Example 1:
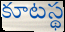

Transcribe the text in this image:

కూటస్థ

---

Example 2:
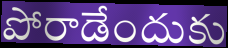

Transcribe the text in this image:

పోరాడేందుకు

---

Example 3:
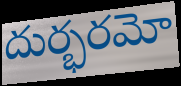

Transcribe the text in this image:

దుర్భరమో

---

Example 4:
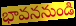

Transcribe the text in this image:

భావననుండి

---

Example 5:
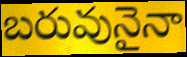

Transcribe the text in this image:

బరువునైనా